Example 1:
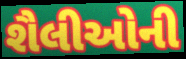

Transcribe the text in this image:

શૈલીઓની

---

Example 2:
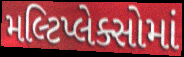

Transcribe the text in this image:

મલ્ટિપ્લેક્સોમાં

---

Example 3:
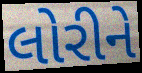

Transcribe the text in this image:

લોરીને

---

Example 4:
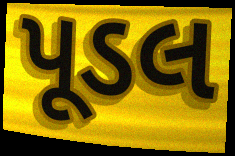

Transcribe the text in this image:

પૂડલ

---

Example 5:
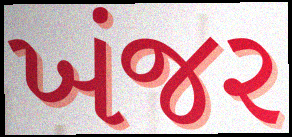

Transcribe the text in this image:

ખંજર